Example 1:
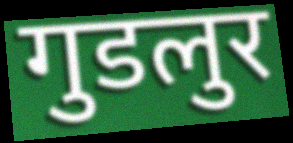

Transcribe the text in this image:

गुडलुर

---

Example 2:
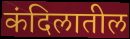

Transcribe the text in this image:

कंदिलातील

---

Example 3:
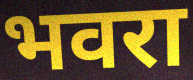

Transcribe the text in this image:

भवरा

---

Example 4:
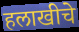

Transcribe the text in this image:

हलाखीचे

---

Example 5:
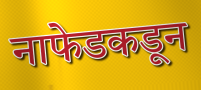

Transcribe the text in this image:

नाफेडकडून